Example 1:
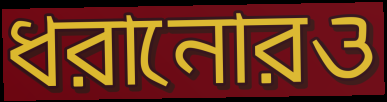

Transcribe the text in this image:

ধরানোরও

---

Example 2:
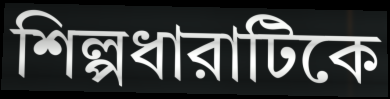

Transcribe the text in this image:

শিল্পধারাটিকে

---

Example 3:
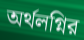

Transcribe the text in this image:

অর্থলগ্নির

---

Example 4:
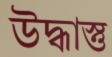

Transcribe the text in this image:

উদ্ধাস্তু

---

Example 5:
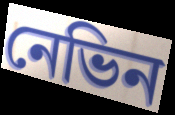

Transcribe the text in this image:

নেভিন